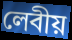
লেবীয়